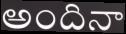
అందినా